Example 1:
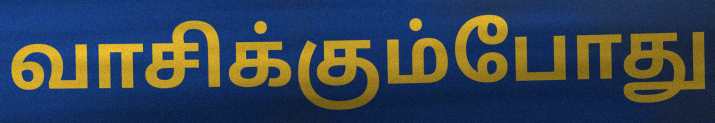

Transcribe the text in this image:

வாசிக்கும்போது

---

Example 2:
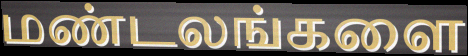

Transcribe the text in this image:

மண்டலங்களை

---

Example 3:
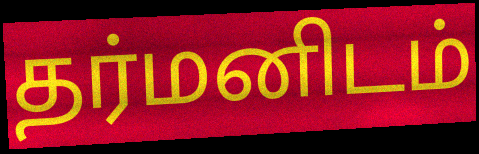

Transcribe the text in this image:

தர்மனிடம்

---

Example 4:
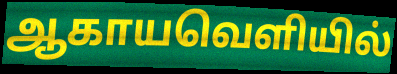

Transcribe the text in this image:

ஆகாயவெளியில்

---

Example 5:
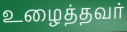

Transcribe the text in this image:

உழைத்தவர்